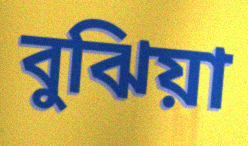
বুঝিয়া